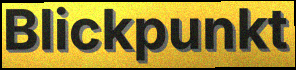
Blickpunkt